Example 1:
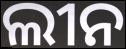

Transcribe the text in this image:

ଲୀନ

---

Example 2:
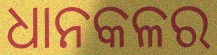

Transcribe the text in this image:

ଧାନକଳର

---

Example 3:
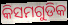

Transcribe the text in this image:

କିସମଗୁଡିକ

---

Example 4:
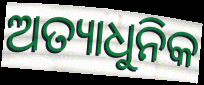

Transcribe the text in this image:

ଅତ୍ୟାଧୁନିକ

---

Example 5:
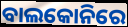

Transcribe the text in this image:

ବାଲକୋନିରେ